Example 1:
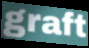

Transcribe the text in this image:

graft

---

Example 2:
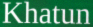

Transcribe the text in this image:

Khatun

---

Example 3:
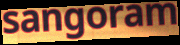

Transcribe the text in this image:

sangoram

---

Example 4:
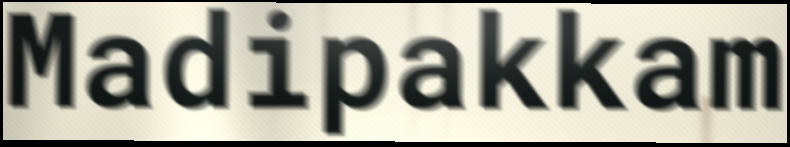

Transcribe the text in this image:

Madipakkam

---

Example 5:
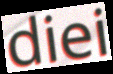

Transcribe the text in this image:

diei